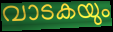
വാടകയും